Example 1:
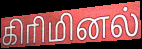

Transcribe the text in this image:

கிரிமினல்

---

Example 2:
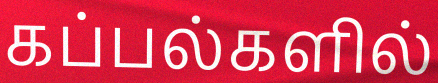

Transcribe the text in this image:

கப்பல்களில்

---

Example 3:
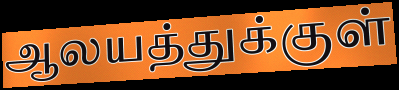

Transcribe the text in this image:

ஆலயத்துக்குள்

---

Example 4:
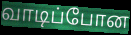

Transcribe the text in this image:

வாடிப்போன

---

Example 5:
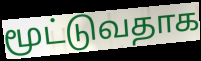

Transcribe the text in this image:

மூட்டுவதாக